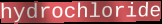
hydrochloride